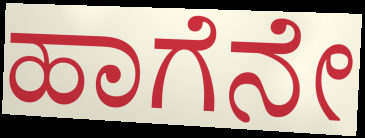
ಹಾಗೆನೇ